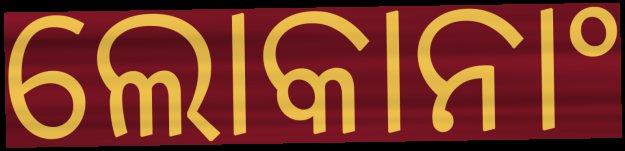
ଲୋକାନାଂ